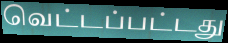
வெட்டப்பட்டது